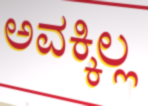
ಅವಕ್ಕಿಲ್ಲ